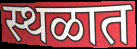
स्थळात